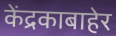
केंद्रकाबाहेर